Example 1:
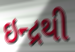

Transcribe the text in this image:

ઇન્દ્રથી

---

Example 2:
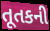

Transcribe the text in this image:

તૂતકની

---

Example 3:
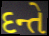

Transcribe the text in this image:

દન્તે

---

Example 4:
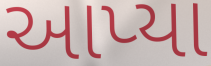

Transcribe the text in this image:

આપ્યા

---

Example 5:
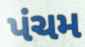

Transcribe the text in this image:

પંચમ